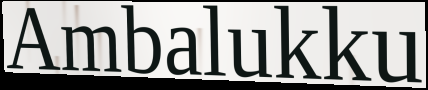
Ambalukku